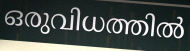
ഒരുവിധത്തിൽ